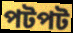
পটপট